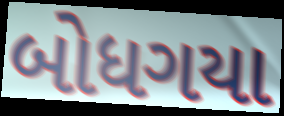
બોધગયા